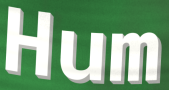
Hum